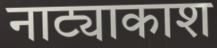
नाट्याकाश